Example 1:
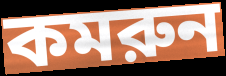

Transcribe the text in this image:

কমরুন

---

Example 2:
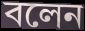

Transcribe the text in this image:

বলেন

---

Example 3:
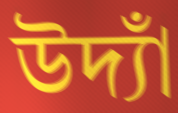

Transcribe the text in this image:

উদ্যাঁ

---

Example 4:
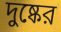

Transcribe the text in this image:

দুষ্কের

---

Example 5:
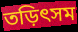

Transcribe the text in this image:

তড়িৎসম